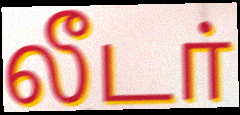
லீடர்